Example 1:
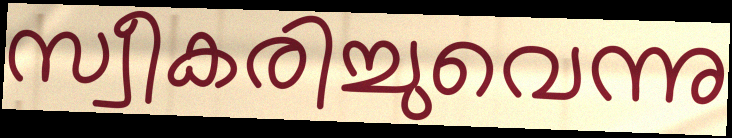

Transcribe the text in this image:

സ്വീകരിച്ചുവെന്നു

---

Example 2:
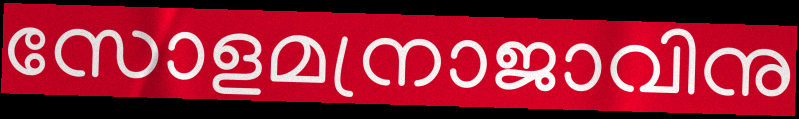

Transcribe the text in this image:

സോളമന്രാജാവിനു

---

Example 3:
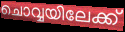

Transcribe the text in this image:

ചൊവ്വയിലേക്ക്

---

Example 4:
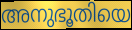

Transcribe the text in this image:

അനുഭൂതിയെ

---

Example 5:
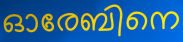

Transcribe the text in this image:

ഓരേബിനെ